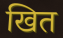
खित